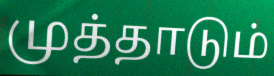
முத்தாடும்